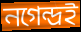
নগেন্দ্রই